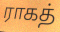
ராகத்